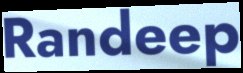
Randeep